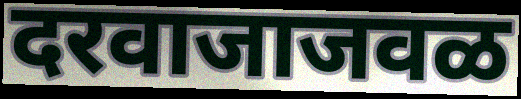
दरवाजाजवळ